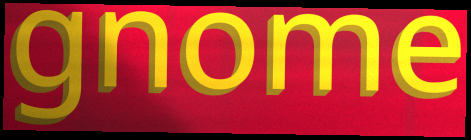
gnome